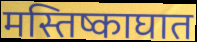
मस्तिष्काघात